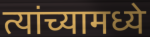
त्यांच्यामध्ये